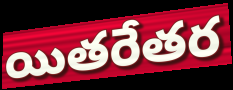
యితరేతర